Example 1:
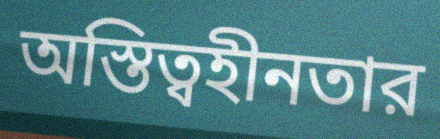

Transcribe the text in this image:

অস্তিত্বহীনতার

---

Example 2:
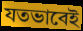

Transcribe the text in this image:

যতভাবেই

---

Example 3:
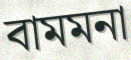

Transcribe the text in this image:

বামমনা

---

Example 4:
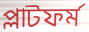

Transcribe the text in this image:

প্লাটফর্ম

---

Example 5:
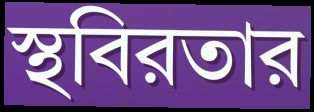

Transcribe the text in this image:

স্থবিরতার